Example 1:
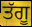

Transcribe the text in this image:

ਤੱਗੂ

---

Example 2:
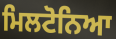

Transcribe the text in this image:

ਮਿਲਟੋਨਿਆ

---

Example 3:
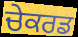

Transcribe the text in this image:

ਚੇਕਰਡ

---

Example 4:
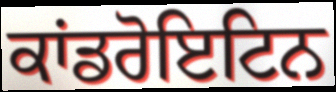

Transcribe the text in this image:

ਕਾਂਡਰੋਇਟਿਨ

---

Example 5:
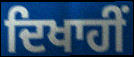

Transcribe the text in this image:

ਦਿਖਾਹੀਂ